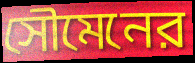
সৌমেনের